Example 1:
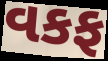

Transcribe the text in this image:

વકફ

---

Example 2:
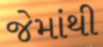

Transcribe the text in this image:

જેમાંથી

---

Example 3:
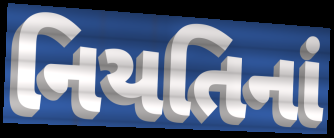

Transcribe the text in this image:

નિયતિનાં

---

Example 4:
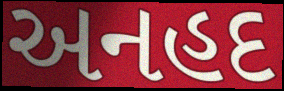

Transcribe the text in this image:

અનહદ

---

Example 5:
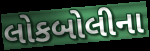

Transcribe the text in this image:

લોકબોલીના